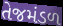
તેજમંડળ